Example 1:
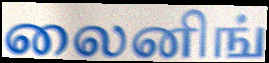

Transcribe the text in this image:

லைனிங்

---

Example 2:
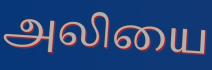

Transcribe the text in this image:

அலியை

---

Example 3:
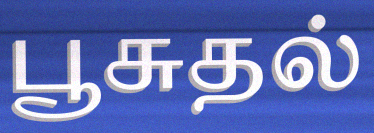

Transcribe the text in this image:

பூசுதல்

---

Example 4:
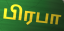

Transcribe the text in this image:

பிரபா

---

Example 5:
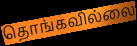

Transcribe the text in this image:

தொங்கவில்லை